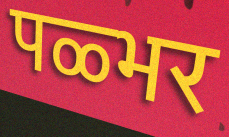
पळ्भर